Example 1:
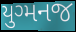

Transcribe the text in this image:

યુગ્મનજ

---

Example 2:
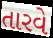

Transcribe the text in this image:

તારવે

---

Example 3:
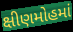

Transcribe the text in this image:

ક્ષીણમોહમાં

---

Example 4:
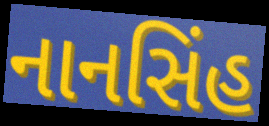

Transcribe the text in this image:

નાનસિંહ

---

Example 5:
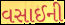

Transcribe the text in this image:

વસાઈની